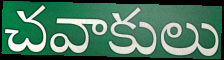
చవాకులు